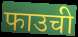
फाउची